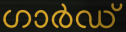
ഗാർഡ്